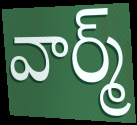
వార్మ్